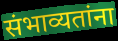
संभाव्यतांना